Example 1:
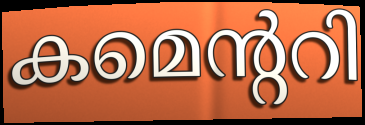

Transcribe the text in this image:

കമെന്ററി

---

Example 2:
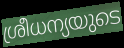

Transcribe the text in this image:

ശ്രീധന്യയുടെ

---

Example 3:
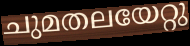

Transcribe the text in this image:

ചുമതലയേറ്റു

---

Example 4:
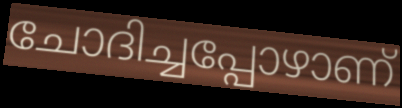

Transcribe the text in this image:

ചോദിച്ചപ്പോഴാണ്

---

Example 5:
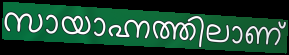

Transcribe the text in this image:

സായാഹ്നത്തിലാണ്